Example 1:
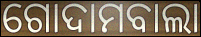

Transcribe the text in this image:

ଗୋଦାମବାଲା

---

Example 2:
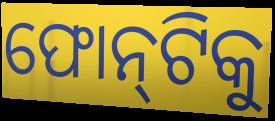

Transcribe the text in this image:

ଫୋନ୍‌ଟିକୁ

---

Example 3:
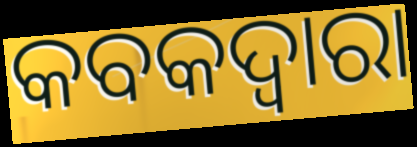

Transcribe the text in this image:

କବକଦ୍ୱାରା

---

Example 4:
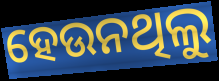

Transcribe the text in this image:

ହେଉନଥିଲୁ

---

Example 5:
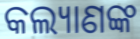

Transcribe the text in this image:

କଲ୍ୟାଣଙ୍କ